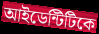
আইডেন্টিটিকে